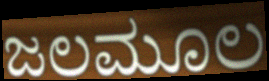
ಜಲಮೂಲ